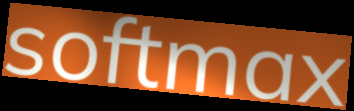
softmax